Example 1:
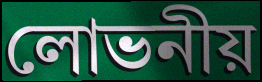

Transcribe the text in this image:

লোভনীয়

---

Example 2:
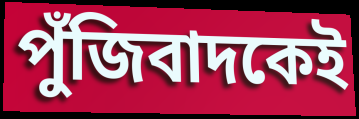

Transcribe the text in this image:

পুঁজিবাদকেই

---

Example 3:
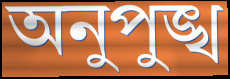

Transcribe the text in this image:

অনুপুঙ্খ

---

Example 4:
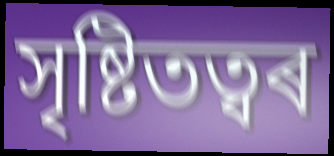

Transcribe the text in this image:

সৃষ্টিতত্বৰ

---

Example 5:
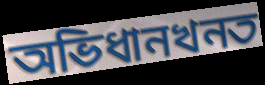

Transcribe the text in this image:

অভিধানখনত